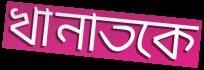
খানাতকে